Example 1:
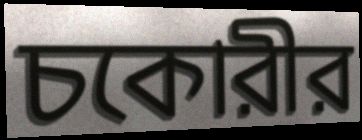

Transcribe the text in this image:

চকোরীর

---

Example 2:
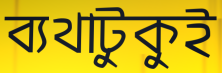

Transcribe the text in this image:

ব্যথাটুকুই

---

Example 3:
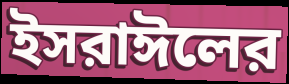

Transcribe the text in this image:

ইসরাঈলের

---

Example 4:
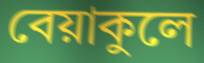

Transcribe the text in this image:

বেয়াকুলে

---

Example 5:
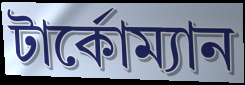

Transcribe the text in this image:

টার্কোম্যান